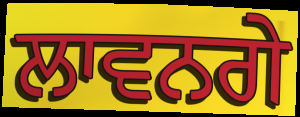
ਲਾਵਨਗੇ